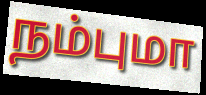
நம்புமா